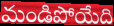
మండిపోయేది